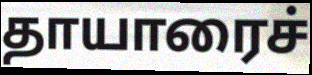
தாயாரைச்